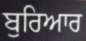
ਬੁਰਿਆਰ